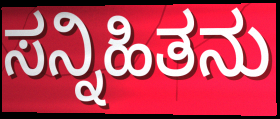
ಸನ್ನಿಹಿತನು